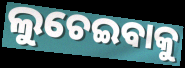
ଲୁଚେଇବାକୁ